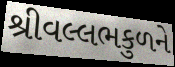
શ્રીવલ્લભકુળને